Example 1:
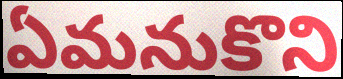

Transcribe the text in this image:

ఏమనుకొని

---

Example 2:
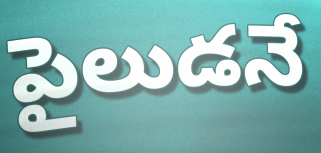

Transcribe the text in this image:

పైలుడనే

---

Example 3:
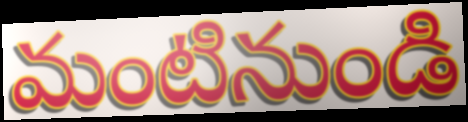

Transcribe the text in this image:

మంటినుండి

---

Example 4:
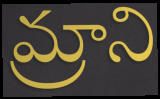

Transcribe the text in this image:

మ్రాని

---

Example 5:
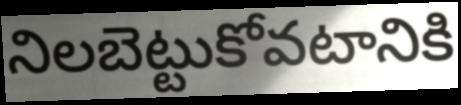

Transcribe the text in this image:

నిలబెట్టుకోవటానికి